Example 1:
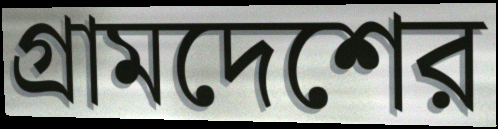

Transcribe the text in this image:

গ্রামদেশের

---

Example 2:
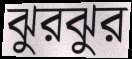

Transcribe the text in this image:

ঝুরঝুর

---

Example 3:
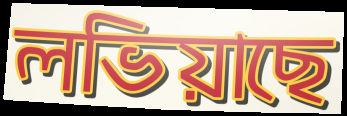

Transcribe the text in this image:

লভিয়াছে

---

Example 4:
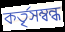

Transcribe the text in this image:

কর্তৃসম্বন্ধ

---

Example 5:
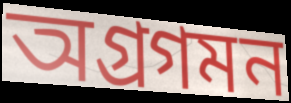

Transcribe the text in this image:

অগ্রগমন